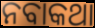
ନବାକଥା